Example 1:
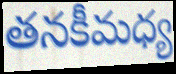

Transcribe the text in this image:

తనకీమధ్య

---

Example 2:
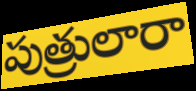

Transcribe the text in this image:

పుత్రులారా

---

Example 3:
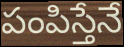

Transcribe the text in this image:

పంపిస్తేనే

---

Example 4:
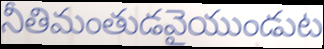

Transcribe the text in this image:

నీతిమంతుడవైయుండుట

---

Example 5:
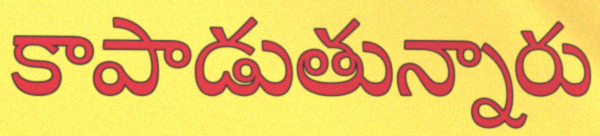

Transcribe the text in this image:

కాపాడుతున్నారు